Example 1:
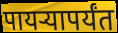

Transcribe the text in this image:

पायऱ्यापर्यंत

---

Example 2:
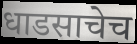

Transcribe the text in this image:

धाडसाचेच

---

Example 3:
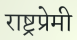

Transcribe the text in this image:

राष्ट्रप्रेमी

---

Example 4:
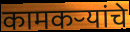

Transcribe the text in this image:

कामकऱ्यांचे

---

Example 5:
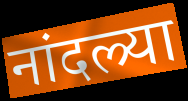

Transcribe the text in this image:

नांदल्या